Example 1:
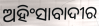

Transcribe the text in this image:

ଅହିଂସାବାଦୀର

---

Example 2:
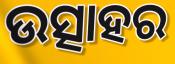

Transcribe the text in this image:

ଉତ୍ସାହର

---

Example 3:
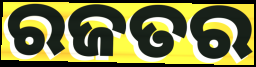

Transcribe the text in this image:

ରଜତର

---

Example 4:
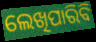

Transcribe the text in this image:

ଲେଖିପାରିବି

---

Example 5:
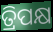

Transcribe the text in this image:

ତ୍ରିପକ୍ଷ